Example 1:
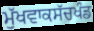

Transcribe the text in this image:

ਮੁੱਖਵਾਕਸੱਚਖੰਡ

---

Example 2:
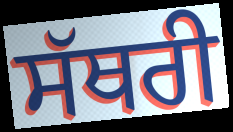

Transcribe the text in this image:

ਸੱਥਰੀ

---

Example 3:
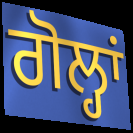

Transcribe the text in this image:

ਗੋਲ੍ਹਾਂ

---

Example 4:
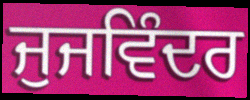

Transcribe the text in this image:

ਜੁਜਵਿੰਦਰ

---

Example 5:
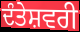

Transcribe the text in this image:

ਦੰਤੇਸ਼ਵਰੀ